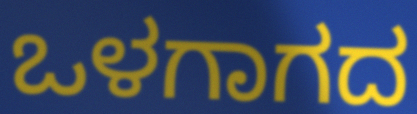
ಒಳಗಾಗದ